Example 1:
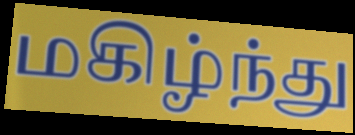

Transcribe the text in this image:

மகிழ்ந்து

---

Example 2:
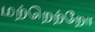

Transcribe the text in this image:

மற்றெற்றோ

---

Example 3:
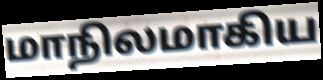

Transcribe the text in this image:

மாநிலமாகிய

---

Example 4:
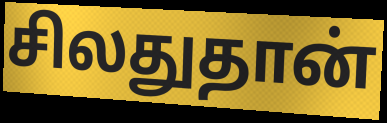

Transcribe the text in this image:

சிலதுதான்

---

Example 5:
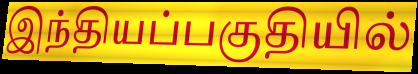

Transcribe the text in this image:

இந்தியப்பகுதியில்